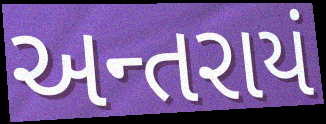
અન્તરાયં